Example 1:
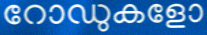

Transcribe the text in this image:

റോഡുകളോ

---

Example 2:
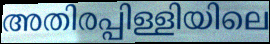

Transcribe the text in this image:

അതിരപ്പിള്ളിയിലെ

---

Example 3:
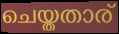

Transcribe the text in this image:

ചെയ്തതാര്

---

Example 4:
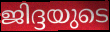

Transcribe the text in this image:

ജിദ്ദയുടെ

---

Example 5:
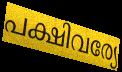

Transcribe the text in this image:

പക്ഷിവര്യേ